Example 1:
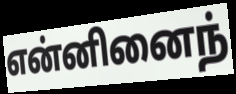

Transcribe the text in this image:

என்னினைந்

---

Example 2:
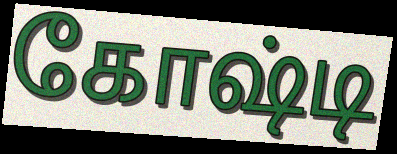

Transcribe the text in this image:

கோஷ்டி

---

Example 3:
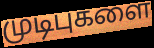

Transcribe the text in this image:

முடிபுகளை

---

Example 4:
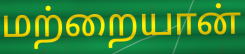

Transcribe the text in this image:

மற்றையான்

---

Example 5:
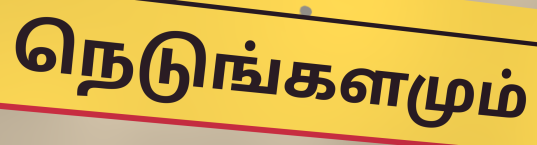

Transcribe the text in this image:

நெடுங்களமும்